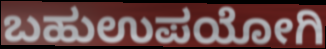
ಬಹುಉಪಯೋಗಿ